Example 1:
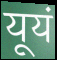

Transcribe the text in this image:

यूयं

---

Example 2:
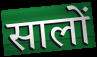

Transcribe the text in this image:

सालों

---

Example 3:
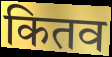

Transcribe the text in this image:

कितव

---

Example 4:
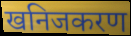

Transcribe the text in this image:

खनिजकरण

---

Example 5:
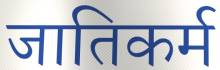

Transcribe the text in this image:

जातिकर्म